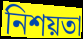
নিশয়তা